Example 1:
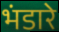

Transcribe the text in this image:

भंडारे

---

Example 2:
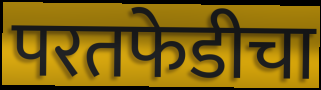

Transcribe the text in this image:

परतफेडीचा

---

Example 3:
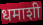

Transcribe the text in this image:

धमाशी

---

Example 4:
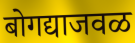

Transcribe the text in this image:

बोगद्याजवळ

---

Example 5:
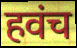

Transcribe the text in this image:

हवंच